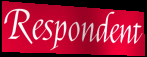
Respondent